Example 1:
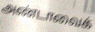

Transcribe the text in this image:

அண்டாவைக்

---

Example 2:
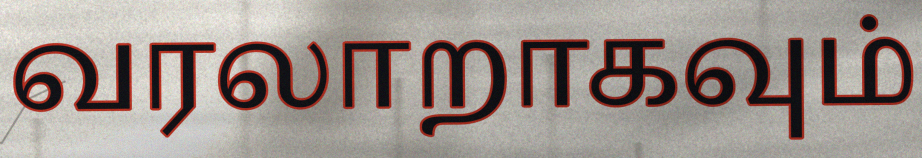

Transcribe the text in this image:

வரலாறாகவும்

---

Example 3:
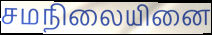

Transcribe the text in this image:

சமநிலையினை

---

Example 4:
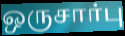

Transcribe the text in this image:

ஒருசார்பு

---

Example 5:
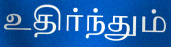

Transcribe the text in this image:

உதிர்ந்தும்